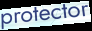
protector